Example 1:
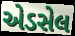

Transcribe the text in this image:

એડસેલ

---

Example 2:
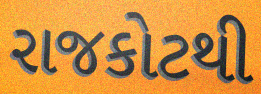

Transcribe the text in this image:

રાજકોટથી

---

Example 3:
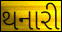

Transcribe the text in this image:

થનારી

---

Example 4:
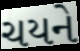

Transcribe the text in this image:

ચયને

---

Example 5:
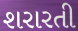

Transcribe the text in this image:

શરારતી